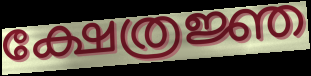
ക്ഷേത്രജ്ഞ